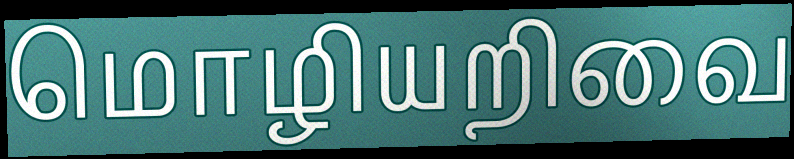
மொழியறிவை